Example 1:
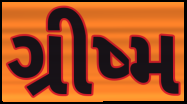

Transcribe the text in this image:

ગ્રીષ્મ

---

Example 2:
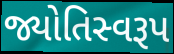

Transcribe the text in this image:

જ્યોતિસ્વરૂપ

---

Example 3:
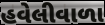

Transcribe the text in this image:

હવેલીવાળા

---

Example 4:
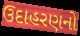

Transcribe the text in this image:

ઉદાહરણનો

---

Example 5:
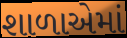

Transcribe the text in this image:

શાળાએમાં